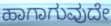
ಹಾಗಾಗುವುದೇ